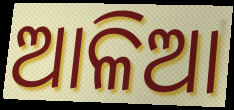
ଆଳିଆ